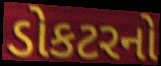
ડોકટરનો